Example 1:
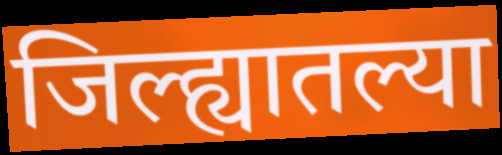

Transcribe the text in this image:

जिल्ह्यातल्या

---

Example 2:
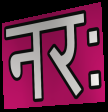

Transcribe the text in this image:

नरः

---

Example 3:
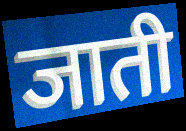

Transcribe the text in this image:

जाती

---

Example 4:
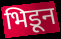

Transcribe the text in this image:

भिडून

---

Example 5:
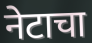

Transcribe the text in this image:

नेटाचा